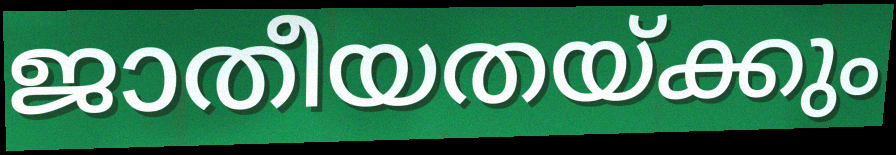
ജാതീയതയ്ക്കും